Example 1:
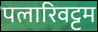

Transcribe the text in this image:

पलारिवट्टम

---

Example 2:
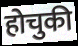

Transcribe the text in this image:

होचुकी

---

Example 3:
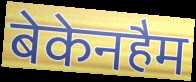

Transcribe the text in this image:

बेकेनहैम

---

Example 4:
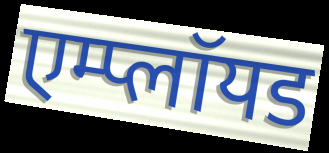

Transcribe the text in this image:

एम्प्लॉयड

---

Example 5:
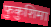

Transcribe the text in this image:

फुकुशिमा